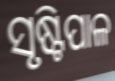
ସୃଷ୍ଟିପାଳ